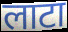
लाटा